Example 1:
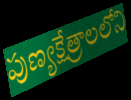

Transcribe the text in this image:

పుణ్యక్షేత్రాలలోని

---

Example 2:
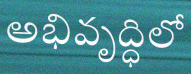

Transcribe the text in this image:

అభివృద్ధిలో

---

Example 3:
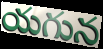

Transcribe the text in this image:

యగున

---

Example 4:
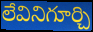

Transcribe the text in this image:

లేవినిగూర్చి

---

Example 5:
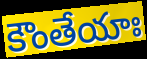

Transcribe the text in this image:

కౌంతేయాః